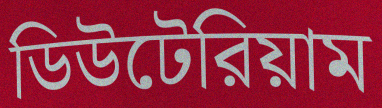
ডিউটেরিয়াম